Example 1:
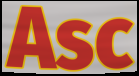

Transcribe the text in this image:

Asc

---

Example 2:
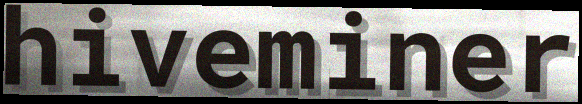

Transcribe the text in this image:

hiveminer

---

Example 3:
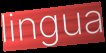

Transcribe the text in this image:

lingua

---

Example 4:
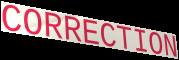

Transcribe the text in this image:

CORRECTION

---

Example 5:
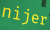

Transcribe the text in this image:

nijer